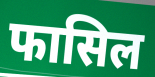
फासिल